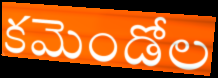
కమెండోల